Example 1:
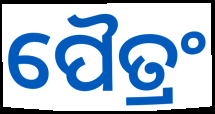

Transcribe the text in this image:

ପୈତ୍ରଂ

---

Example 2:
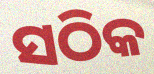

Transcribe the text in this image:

ସଠିକ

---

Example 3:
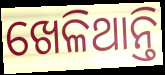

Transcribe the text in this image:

ଖେଳିଥାନ୍ତି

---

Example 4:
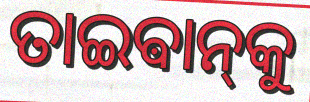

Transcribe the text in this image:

ତାଇଵାନ୍‌କୁ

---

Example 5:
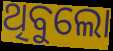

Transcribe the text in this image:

ଥିବୁଲୋ